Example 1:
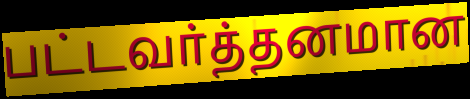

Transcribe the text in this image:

பட்டவர்த்தனமான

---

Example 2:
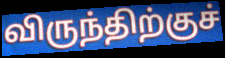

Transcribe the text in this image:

விருந்திற்குச்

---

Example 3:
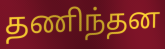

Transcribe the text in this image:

தணிந்தன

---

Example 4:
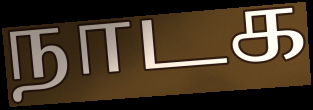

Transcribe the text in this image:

நாடக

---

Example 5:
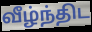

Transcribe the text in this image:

வீழ்ந்திட